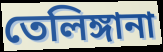
তেলিঙ্গানা